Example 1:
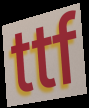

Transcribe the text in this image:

ttf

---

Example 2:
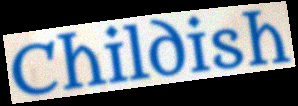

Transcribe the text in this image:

Childish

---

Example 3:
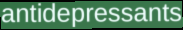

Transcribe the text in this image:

antidepressants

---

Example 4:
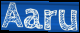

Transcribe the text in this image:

Aaru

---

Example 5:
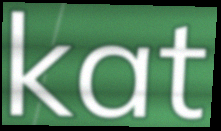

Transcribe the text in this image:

kat